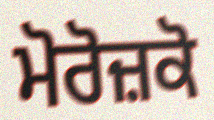
ਮੋਰੋਜ਼ਕੋ